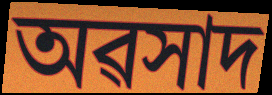
অৱসাদ